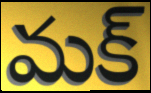
మక్